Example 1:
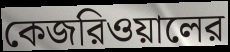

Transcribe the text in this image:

কেজরিওয়ালের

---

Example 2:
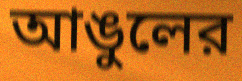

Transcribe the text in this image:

আঙুলের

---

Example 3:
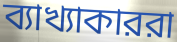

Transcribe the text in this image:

ব্যাখ্যাকাররা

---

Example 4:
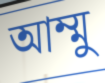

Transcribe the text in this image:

আম্মু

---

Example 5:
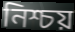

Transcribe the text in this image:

নিশ্চয়